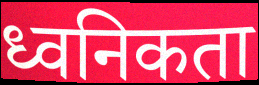
ध्वनिकता